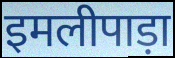
इमलीपाड़ा